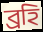
ব্রহি